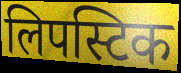
लिपस्टिक